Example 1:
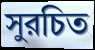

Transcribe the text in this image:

সুরচিত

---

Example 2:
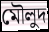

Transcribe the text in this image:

মৌলুদ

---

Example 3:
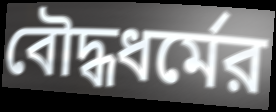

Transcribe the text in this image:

বৌদ্ধধর্মের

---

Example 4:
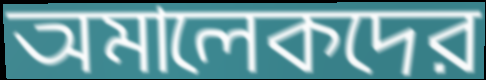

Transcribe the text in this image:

অমালেকদের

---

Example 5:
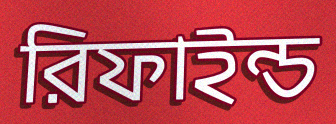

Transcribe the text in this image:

রিফাইন্ড